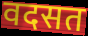
वदसत